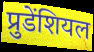
प्रुडेंशियल